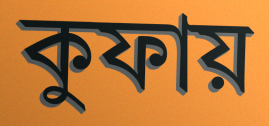
কুফায়